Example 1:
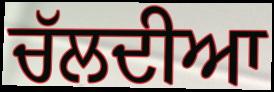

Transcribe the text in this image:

ਚੱਲਦੀਆ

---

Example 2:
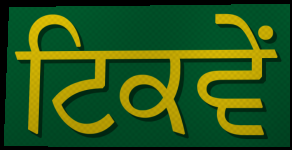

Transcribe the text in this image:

ਟਿਕਵੇਂ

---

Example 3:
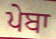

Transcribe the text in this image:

ਪੇਬਾ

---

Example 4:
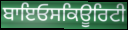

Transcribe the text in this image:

ਬਾਇਓਸਕਿਊਰਿਟੀ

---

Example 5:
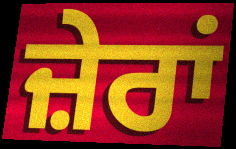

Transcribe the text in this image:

ਜ਼ੇਰਾਂ